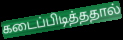
கடைப்பிடித்ததால்